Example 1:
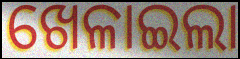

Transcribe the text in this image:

ଖେଳାଇଲା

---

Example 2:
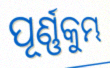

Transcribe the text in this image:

ପୂର୍ଣ୍ଣକୁମ୍ଭ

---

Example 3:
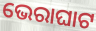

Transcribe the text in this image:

ଭେରାଘାଟ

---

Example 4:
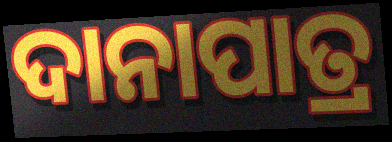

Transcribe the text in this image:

ଦାନାପାତ୍ର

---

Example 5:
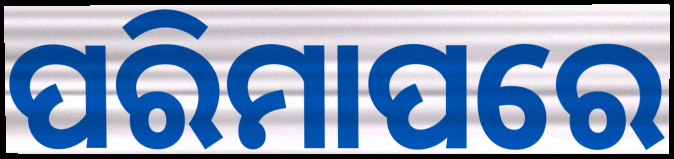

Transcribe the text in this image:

ପରିମାପରେ